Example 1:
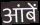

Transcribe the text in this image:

आंबें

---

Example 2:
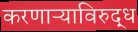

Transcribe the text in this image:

करणाऱ्याविरुद्ध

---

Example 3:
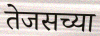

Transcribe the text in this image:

तेजसच्या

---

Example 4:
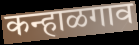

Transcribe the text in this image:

कन्हाळगाव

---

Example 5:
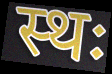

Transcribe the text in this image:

स्थः